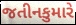
જતીનકુમારે